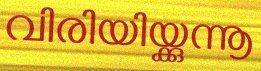
വിരിയിയ്ക്കുന്നൂ